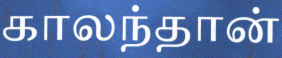
காலந்தான்